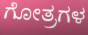
ಗೋತ್ರಗಳ